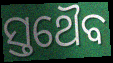
ସ୍ତଥୈବ